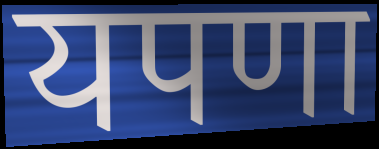
यपणा